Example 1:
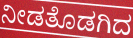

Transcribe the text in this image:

ನೀಡತೊಡಗಿದ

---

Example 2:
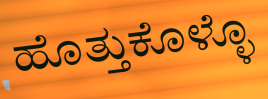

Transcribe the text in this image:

ಹೊತ್ತುಕೊಳ್ಳೊ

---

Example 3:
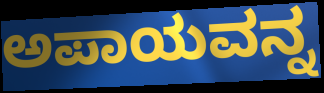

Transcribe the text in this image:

ಅಪಾಯವನ್ನ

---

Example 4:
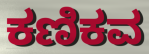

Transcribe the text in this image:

ಕಣಿಕವ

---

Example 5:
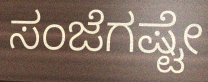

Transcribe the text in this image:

ಸಂಜೆಗಷ್ಟೇ